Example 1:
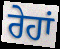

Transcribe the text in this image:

ਰੇਹਾਂ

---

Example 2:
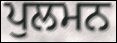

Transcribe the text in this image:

ਪੁਲਮਨ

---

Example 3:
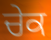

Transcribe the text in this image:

ਚੇਕ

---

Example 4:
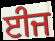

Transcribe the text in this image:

ਈਜ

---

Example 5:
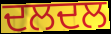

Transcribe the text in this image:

ਦਲਦਲ